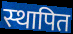
स्‍थापित